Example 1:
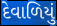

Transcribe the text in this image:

દેવાળિયું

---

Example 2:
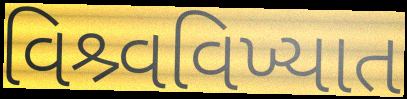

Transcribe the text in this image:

વિશ્ર્વવિખ્યાત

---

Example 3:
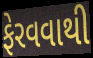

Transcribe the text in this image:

ફેરવવાથી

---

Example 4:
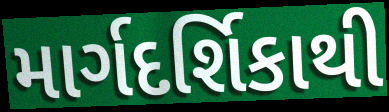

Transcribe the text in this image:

માર્ગદર્શિકાથી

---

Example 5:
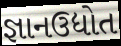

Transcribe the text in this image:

જ્ઞાનઉદ્યોત